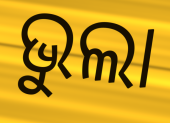
ଭୁଲା